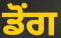
ਡੋਂਗ